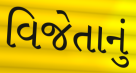
વિજેતાનું